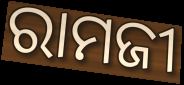
ରାମଜୀ